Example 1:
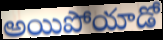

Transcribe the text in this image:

అయిపోయాడో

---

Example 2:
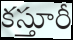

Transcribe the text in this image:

కస్తూరీ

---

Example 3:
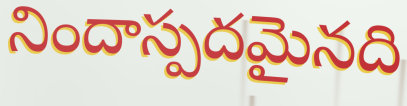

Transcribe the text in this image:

నిందాస్పదమైనది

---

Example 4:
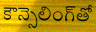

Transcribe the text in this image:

కౌన్సెలింగ్‌తో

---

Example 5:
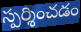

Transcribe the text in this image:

స్పర్శించడం